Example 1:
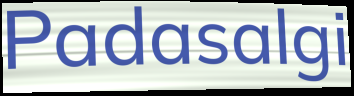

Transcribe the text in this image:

Padasalgi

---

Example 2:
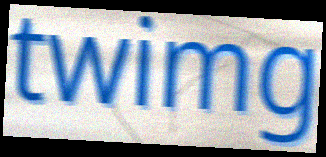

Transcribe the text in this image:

twimg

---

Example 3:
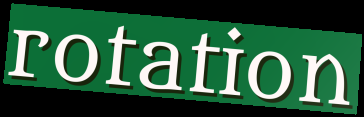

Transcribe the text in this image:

rotation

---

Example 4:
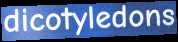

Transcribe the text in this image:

dicotyledons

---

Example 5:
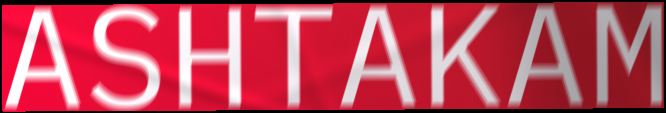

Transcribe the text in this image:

ASHTAKAM